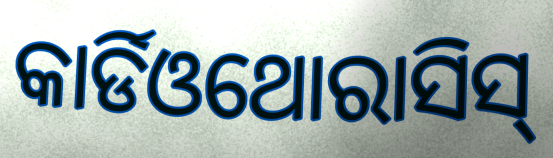
କାର୍ଡିଓଥୋରାସିସ୍